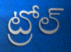
ట్రోల్